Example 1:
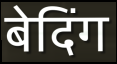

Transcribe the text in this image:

बेदिंग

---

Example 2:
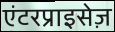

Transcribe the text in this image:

एंटरप्राइसेज़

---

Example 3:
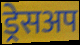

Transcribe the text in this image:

ड्रेसअप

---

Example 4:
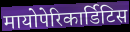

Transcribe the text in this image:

मायोपेरिकार्डिटिस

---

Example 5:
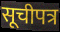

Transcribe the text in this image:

सूचीपत्र